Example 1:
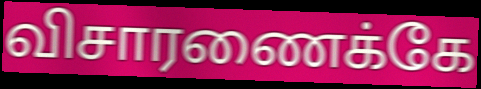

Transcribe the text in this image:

விசாரணைக்கே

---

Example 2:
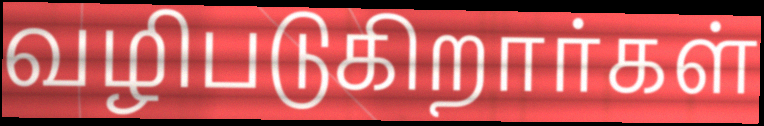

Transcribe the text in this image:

வழிபடுகிறார்கள்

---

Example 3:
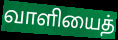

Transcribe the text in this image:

வாளியைத்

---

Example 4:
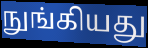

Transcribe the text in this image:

நுங்கியது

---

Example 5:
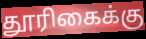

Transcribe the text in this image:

தூரிகைக்கு